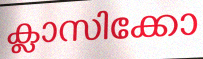
ക്ലാസിക്കോ